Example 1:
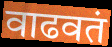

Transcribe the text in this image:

वाढवतं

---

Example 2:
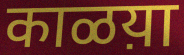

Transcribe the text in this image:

काळय़ा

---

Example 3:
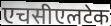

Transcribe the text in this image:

एचसीएलटेक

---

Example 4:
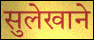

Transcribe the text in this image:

सुलेखाने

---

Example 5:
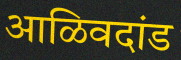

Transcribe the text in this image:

आळिवदांड